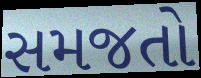
સમજતો